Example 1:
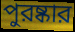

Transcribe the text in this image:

পুরষ্কার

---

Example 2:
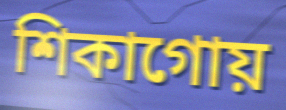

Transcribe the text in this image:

শিকাগোয়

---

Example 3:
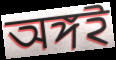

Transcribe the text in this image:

অঙ্গই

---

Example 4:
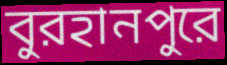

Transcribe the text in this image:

বুরহানপুরে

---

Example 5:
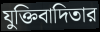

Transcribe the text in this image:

যুক্তিবাদিতার